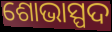
ଶୋଭାସ୍ପଦ